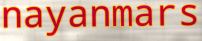
nayanmars